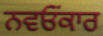
ਨਵਓਂਕਾਰ